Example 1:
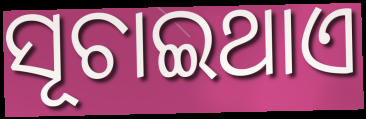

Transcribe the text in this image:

ସୂଚାଇଥାଏ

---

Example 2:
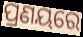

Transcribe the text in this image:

ପ୍ରଣୟରେ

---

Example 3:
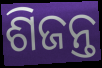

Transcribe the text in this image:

ଶିଜନ୍ତ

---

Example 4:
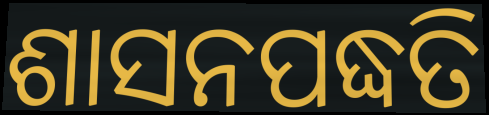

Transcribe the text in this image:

ଶାସନପଦ୍ଧତି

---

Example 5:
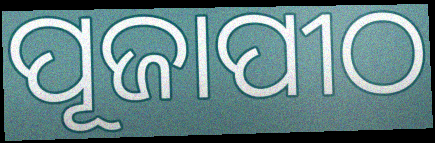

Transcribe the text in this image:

ପୂଜାପୀଠ